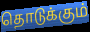
தொடுக்கும்